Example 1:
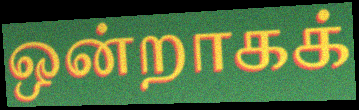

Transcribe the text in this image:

ஒன்றாகக்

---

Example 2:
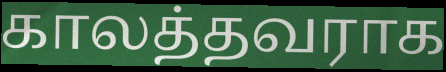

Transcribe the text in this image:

காலத்தவராக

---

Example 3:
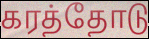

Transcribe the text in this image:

கரத்தோடு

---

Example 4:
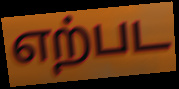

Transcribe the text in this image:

எற்பட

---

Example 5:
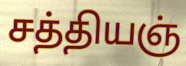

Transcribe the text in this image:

சத்தியஞ்